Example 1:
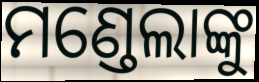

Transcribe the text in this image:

ମଣ୍ଡେଲାଙ୍କୁ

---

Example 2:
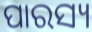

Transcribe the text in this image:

ପାରସ୍ୟ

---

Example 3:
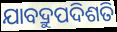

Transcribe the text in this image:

ଯାବଦ୍ରୁପଦିଶତି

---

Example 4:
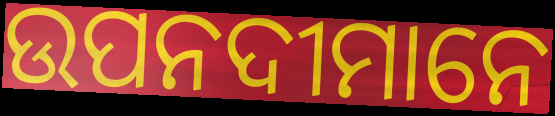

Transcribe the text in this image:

ଉପନଦୀମାନେ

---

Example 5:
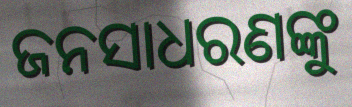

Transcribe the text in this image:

ଜନସାଧରଣଙ୍କୁ